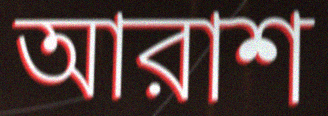
আরাশ